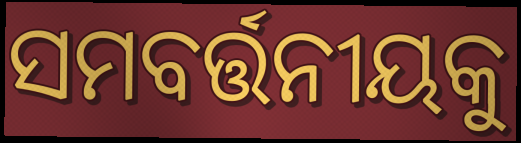
ସମବର୍ତ୍ତନୀୟକୁ